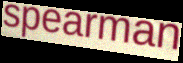
spearman